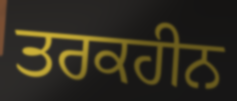
ਤਰਕਹੀਨ